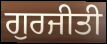
ਗੁਰਜੀਤੀ